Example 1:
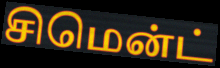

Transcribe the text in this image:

சிமென்ட்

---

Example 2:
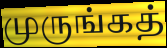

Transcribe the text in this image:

முருங்கத்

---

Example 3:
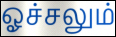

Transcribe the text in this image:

ஓச்சலும்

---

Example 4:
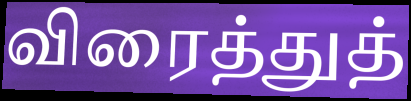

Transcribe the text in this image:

விரைத்துத்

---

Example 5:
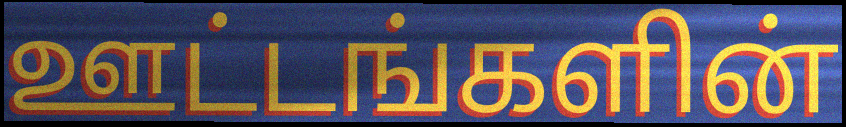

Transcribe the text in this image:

ஊட்டங்களின்